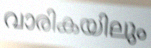
വാരികയിലും